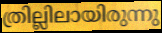
ത്രില്ലിലായിരുന്നു